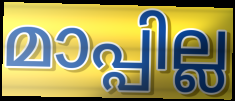
മാപ്പില്ല